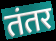
तंतर